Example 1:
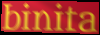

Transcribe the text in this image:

binita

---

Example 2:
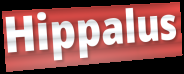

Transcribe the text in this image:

Hippalus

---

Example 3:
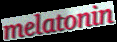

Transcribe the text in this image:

melatonin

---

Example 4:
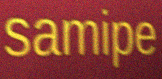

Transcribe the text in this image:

samipe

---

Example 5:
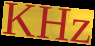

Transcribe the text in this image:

KHz